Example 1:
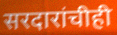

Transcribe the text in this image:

सरदारांचीही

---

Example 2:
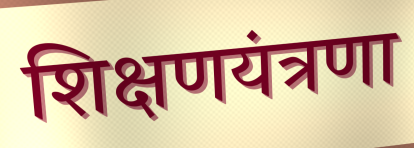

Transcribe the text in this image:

शिक्षणयंत्रणा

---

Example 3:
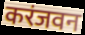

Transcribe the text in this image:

करंजवन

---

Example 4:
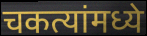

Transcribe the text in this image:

चकत्यांमध्ये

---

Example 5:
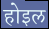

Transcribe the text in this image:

होइल